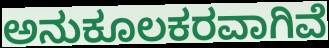
ಅನುಕೂಲಕರವಾಗಿವೆ